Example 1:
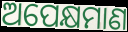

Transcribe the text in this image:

ଅପେକ୍ଷମାଣ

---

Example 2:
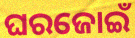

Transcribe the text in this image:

ଘରଜୋଇଁ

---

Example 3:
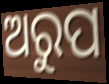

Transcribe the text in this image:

ଅରୁପ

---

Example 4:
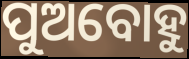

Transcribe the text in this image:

ପୁଅବୋହୁ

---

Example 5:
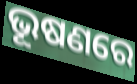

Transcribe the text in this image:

ଭୂଷଣରେ